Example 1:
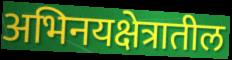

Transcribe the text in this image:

अभिनयक्षेत्रातील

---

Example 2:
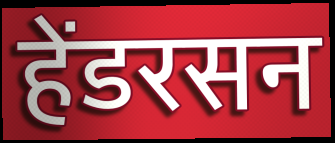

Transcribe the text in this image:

हेंडरसन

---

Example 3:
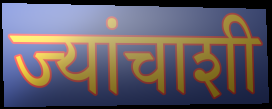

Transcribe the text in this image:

ज्यांचाशी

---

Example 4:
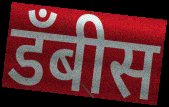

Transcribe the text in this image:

डॅंबीस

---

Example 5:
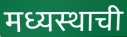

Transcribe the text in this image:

मध्यस्थाची